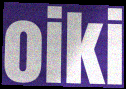
oiki